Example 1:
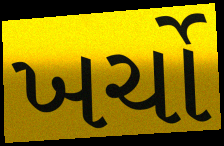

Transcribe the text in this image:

ખર્ચો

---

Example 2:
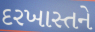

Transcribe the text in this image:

દરખાસ્તને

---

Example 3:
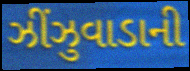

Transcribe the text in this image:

ઝીંઝુવાડાની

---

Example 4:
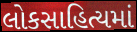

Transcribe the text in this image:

લોકસાહિત્યમાં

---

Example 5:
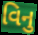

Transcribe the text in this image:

વિનુ